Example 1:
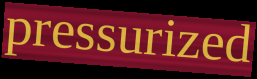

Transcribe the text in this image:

pressurized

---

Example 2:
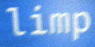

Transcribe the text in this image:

limp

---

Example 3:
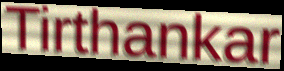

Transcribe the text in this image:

Tirthankar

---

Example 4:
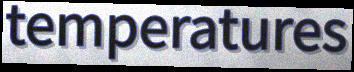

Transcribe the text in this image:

temperatures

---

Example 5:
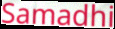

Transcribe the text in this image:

Samadhi